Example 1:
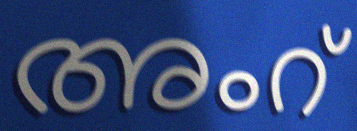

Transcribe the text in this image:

അംറ്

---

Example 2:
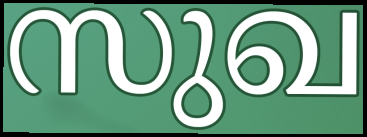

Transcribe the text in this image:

സുഖ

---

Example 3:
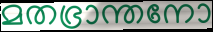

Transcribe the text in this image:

മതഭ്രാന്തനോ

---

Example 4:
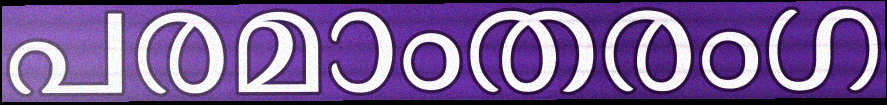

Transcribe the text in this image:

പരമാംതരംഗ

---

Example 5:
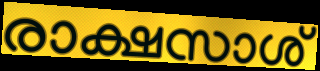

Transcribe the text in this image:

രാക്ഷസാശ്